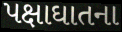
પક્ષાઘાતના